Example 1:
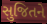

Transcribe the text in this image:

સુજિતને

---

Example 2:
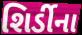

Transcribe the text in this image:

શિર્ડીના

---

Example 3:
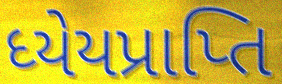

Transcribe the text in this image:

ધ્યેયપ્રાપ્તિ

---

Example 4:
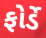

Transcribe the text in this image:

ફોર્ડે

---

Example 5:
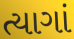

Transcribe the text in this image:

ત્યાગાં